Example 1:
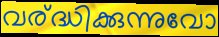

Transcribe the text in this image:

വര്ദ്ധിക്കുന്നുവോ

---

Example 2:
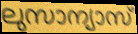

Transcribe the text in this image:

ലുസാന്യാസ്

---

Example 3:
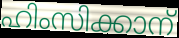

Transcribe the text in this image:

ഹിംസിക്കാന്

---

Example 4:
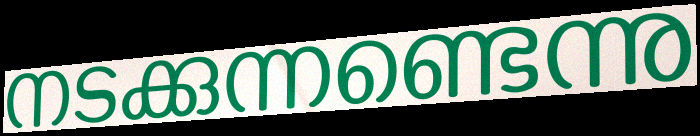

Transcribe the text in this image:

നടക്കുന്നണ്ടെന്നു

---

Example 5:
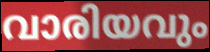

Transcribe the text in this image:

വാരിയവും